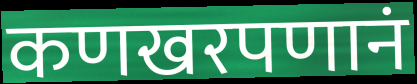
कणखरपणानं